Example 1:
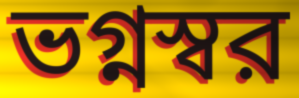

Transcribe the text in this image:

ভগ্নস্বর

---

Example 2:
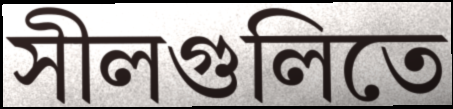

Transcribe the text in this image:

সীলগুলিতে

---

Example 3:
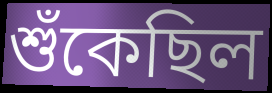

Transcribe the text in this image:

শুঁকেছিল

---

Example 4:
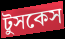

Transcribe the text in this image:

টুসকেস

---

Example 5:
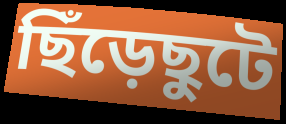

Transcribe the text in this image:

ছিঁড়েছুটে